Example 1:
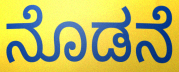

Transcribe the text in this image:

ನೊಡನೆ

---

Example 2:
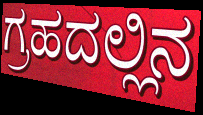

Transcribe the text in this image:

ಗ್ರಹದಲ್ಲಿನ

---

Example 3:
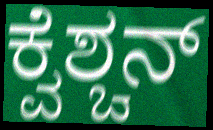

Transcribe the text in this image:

ಕ್ವೆಶ್ಚನ್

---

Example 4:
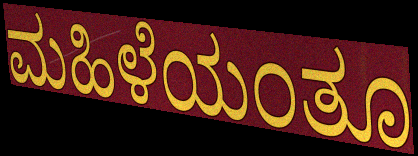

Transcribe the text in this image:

ಮಹಿಳೆಯಂತೂ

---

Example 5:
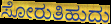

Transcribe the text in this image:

ಸೋರುತಿಹುದು